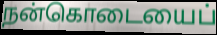
நன்கொடையைப்